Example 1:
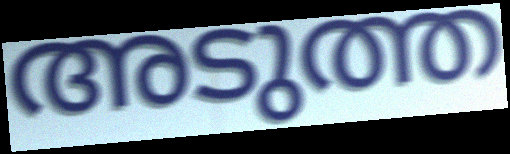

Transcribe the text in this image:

അടുത്ത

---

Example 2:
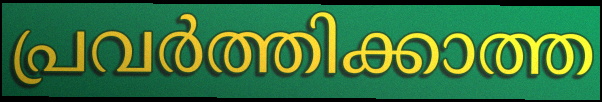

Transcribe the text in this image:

പ്രവർത്തിക്കാത്ത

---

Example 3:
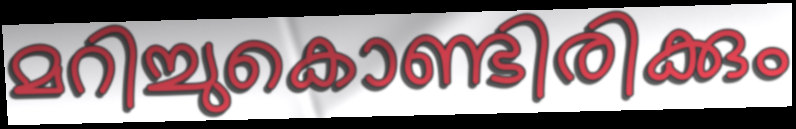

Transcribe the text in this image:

മറിച്ചുകൊണ്ടിരിക്കും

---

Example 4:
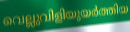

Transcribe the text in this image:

വെല്ലുവിളിയുയർത്തിയ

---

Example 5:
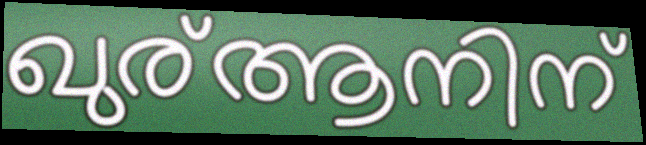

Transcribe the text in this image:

ഖുര്ആനിന്